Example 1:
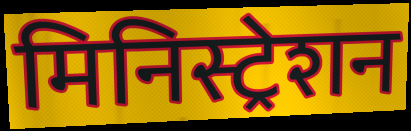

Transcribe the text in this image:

मिनिस्ट्रेशन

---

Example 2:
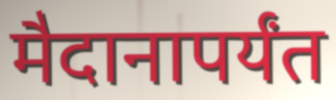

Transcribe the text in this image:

मैदानापर्यंत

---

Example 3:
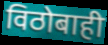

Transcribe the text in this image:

विठोबाही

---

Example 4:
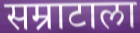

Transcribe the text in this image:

सम्राटाला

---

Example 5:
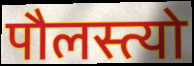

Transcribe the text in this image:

पौलस्त्यो